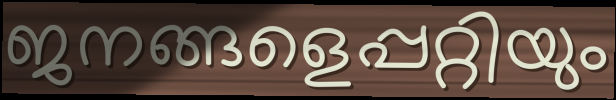
ജനങ്ങളെപ്പറ്റിയും